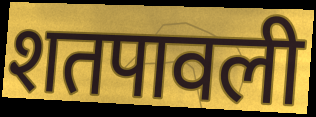
शतपावली